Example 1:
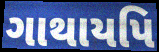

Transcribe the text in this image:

ગાથાયપિ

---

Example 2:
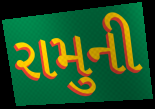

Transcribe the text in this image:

રામુની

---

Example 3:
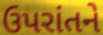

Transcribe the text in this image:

ઉપરાંતને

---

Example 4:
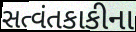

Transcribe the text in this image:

સત્વંતકાકીના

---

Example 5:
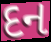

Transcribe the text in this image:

દન